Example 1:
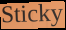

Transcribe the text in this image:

Sticky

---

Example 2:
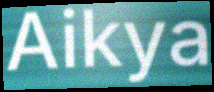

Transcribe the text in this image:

Aikya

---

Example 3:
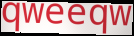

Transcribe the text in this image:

qweeqw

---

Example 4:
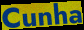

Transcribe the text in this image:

Cunha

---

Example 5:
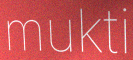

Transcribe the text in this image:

mukti